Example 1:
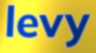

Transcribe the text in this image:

levy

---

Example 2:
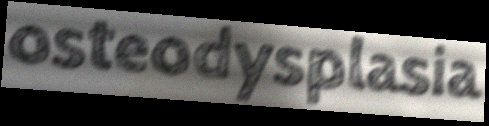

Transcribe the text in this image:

osteodysplasia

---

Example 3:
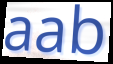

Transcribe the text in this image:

aab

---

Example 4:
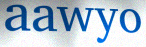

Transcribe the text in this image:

aawyo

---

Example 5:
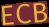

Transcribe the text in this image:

ECB